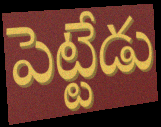
పెట్టేడు